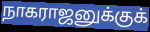
நாகராஜனுக்குக்